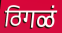
ठिगळं